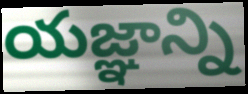
యజ్ఞాన్ని